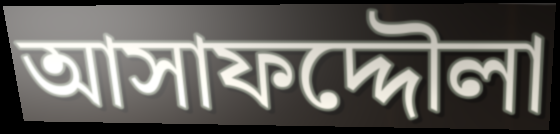
আসাফদ্দৌলা